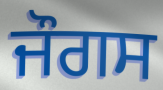
ਜੌਗਸ